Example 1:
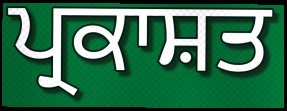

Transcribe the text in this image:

ਪ੍ਰਕਾਸ਼ਤ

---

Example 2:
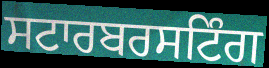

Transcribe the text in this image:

ਸਟਾਰਬਰਸਟਿੰਗ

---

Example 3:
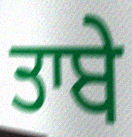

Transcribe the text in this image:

ਤਾਬੇ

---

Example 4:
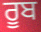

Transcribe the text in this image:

ਰੂਬ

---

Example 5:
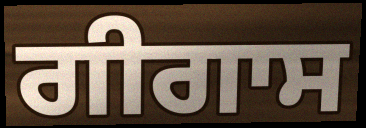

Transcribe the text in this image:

ਗੀਗਾਸ